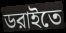
ডরাইতে